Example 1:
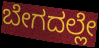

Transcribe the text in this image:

ಬೇಗದಲ್ಲೇ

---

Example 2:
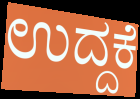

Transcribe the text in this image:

ಉದ್ದಕೆ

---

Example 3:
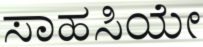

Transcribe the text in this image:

ಸಾಹಸಿಯೇ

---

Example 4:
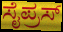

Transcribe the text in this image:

ಸೈಪ್ರಸ್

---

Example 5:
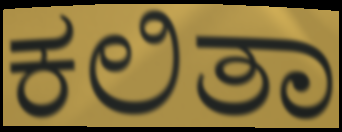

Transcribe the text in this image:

ಕಲಿತಾ